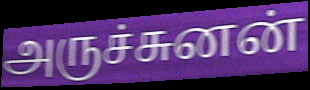
அருச்சுனன்